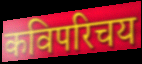
कविपरिचय